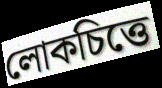
লোকচিত্তে